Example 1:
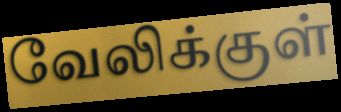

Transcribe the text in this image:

வேலிக்குள்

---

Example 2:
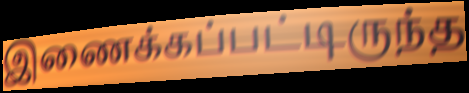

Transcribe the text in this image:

இணைக்கப்பட்டிருந்த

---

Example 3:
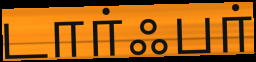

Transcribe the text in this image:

டார்ஃபர்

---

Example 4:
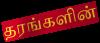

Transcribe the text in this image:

தரங்களின்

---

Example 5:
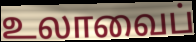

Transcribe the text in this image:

உலாவைப்